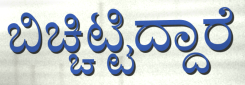
ಬಿಚ್ಚಿಟ್ಟಿದ್ದಾರೆ